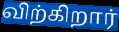
விற்கிறார்